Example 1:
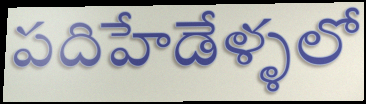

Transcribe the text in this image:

పదిహేడేళ్ళలో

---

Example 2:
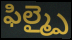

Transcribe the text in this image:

ఫిల్మ్పై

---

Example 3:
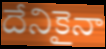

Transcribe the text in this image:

దేనికైనా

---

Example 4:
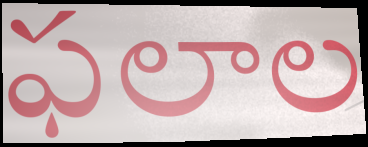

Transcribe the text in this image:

ఫలాల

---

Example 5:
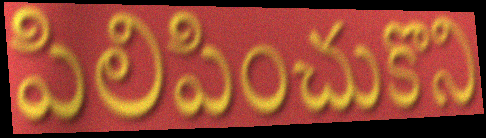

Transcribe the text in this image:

పిలిపించుకొని